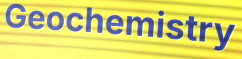
Geochemistry